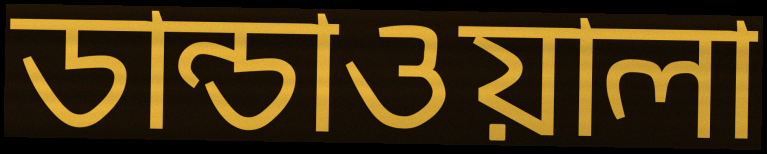
ডান্ডাওয়ালা